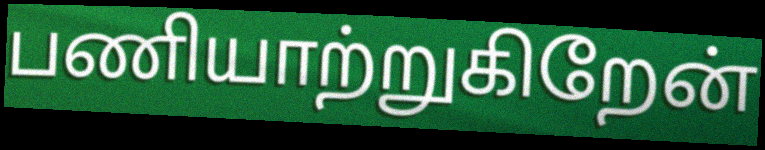
பணியாற்றுகிறேன்